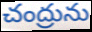
చంద్రును